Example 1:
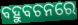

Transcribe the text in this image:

ବହୁବଚନରେ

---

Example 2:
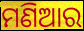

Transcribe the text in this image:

ମଣିଆର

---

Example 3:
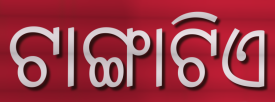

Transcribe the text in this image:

ଟାଙ୍ଗାଟିଏ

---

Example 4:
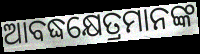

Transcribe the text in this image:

ଆବଦ୍ଧକ୍ଷେତ୍ରମାନଙ୍କ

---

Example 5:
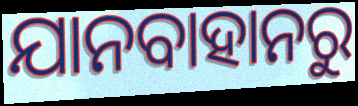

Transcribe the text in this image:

ଯାନବାହାନରୁ